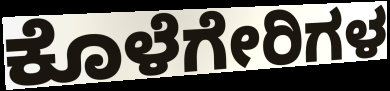
ಕೊಳೆಗೇರಿಗಳ